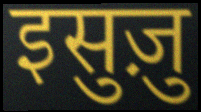
इसुज़ु